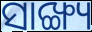
ସାଙ୍ଖ୍ୟ